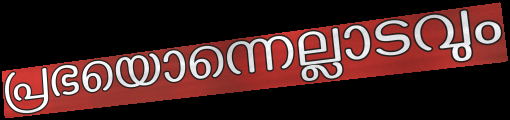
പ്രഭയൊന്നെല്ലാടവും